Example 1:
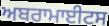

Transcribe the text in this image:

ਅਬਰਾਮਾਈਟਸ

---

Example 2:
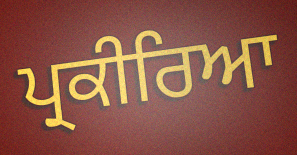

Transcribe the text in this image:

ਪ੍ਰਕੀਰਿਆ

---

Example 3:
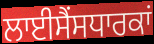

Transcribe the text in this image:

ਲਾਈਸੈਂਸਧਾਰਕਾਂ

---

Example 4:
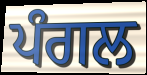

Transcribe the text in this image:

ਪੰਗਲ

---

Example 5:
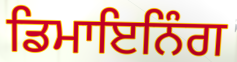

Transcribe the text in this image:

ਡਿਮਾਇਨਿੰਗ